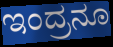
ಇಂದ್ರನೂ